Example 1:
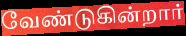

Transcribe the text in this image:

வேண்டுகின்றார்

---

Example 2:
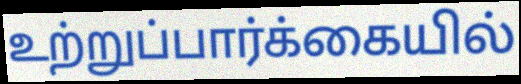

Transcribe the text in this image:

உற்றுப்பார்க்கையில்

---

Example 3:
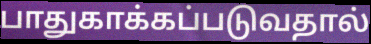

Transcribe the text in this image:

பாதுகாக்கப்படுவதால்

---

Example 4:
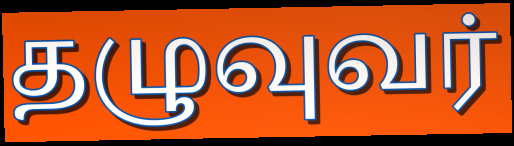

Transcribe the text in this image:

தழுவுவர்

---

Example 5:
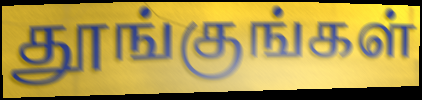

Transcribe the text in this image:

தூங்குங்கள்